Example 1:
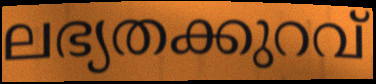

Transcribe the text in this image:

ലഭ്യതക്കുറവ്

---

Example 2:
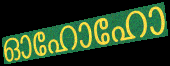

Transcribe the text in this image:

ഓഹോഹോ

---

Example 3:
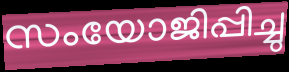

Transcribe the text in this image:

സംയോജിപ്പിച്ചു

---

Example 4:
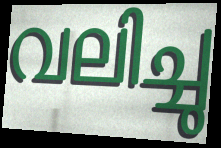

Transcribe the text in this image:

വലിച്ചു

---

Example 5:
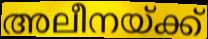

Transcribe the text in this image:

അലീനയ്ക്ക്